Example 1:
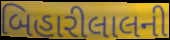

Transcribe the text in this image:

બિહારીલાલની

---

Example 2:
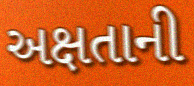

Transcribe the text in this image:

અક્ષતાની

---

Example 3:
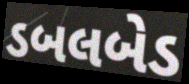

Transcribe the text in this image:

ડબલબેડ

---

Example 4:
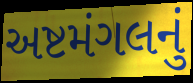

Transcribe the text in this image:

અષ્ટમંગલનું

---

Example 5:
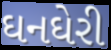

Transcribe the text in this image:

ઘનઘેરી